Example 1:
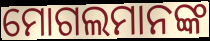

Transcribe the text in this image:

ମୋଗଲମାନଙ୍କ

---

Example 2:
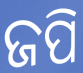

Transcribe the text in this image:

ଜପି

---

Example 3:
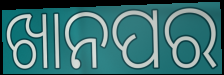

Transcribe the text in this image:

ଖାନପର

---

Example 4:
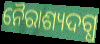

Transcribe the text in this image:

ନୈରାଶ୍ୟଦଗ୍ଧ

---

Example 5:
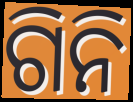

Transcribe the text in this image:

ଗିନି